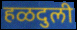
हळदुली